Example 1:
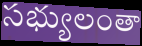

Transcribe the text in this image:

సభ్యులంతా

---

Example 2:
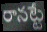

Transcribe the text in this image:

రానట్టే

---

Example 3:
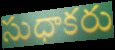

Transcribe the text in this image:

సుధాకరు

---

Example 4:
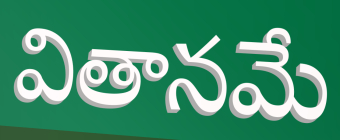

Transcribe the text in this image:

వితానమే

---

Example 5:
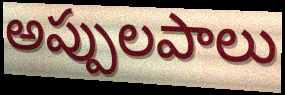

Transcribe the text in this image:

అప్పులపాలు